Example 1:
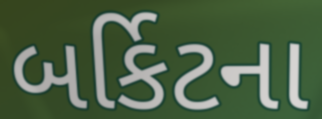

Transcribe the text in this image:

બર્કિટના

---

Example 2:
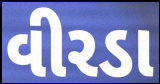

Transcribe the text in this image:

વીરડા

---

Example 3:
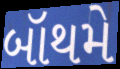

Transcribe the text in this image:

બૉથમે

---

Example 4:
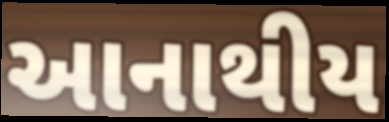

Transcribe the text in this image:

આનાથીય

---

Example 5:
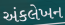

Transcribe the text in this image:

અંકલેખન